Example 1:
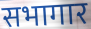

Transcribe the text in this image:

सभागार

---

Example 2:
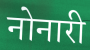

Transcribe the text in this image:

नोनारी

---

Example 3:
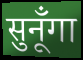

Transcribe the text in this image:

सुनूँगा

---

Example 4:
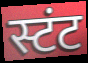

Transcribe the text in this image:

स्टंट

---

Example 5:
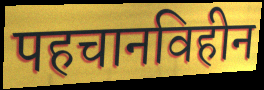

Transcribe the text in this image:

पहचानविहीन